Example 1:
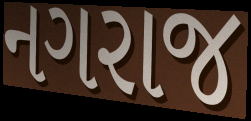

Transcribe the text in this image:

નગરાજ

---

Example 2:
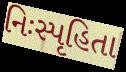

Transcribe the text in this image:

નિઃસ્પૃહિતા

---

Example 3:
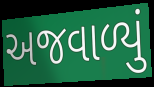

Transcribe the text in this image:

અજવાળ્યું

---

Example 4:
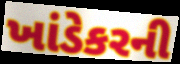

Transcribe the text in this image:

ખાંડેકરની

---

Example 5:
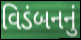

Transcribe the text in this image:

વિડંબનનું